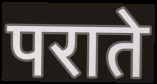
पराते